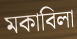
মকাবিলা